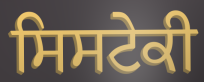
ਸਿਸਟੇਕੀ